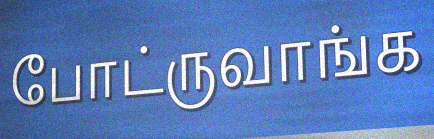
போட்ருவாங்க